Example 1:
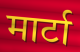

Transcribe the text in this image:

मार्टा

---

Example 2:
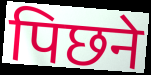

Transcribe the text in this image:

पिछने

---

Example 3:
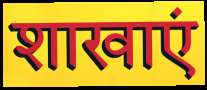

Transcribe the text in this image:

शाखाएं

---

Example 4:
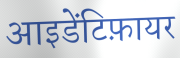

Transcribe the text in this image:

आइडेंटिफ़ायर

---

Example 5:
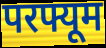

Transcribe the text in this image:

परफ्यूम